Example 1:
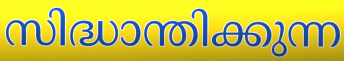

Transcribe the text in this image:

സിദ്ധാന്തിക്കുന്ന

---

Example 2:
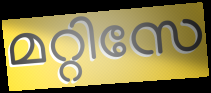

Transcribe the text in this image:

മറ്റിസേ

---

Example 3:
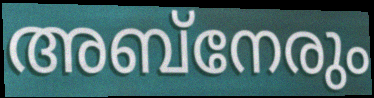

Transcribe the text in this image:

അബ്നേരും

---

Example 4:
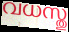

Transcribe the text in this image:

വധസ്തു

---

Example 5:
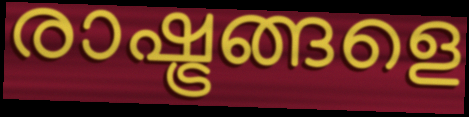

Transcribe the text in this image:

രാഷ്ട്രങ്ങളെ